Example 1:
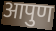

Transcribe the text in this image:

आपुण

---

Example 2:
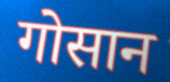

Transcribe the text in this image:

गोसान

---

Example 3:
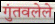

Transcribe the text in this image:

गुंतवलेले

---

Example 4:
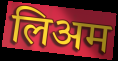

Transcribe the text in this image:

लिअम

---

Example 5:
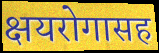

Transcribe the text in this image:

क्षयरोगासह